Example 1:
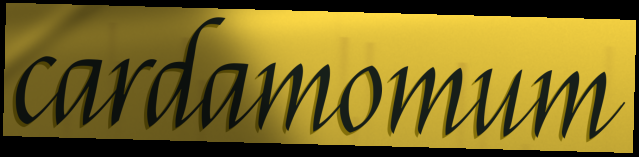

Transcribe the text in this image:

cardamomum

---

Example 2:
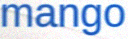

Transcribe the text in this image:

mango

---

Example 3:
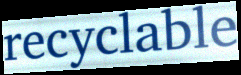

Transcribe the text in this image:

recyclable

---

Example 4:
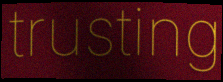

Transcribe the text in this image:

trusting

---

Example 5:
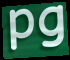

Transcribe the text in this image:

pg